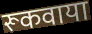
रूकवाया